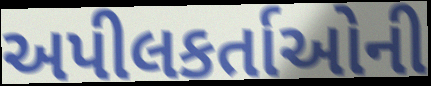
અપીલકર્તાઓની